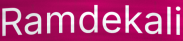
Ramdekali